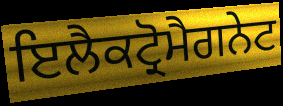
ਇਲੈਕਟ੍ਰੋਮੈਗਨੇਟ